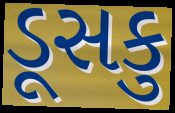
ડૂસકુ